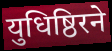
युधिष्ठिरने